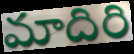
మాదిరి